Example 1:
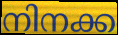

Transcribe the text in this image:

നിനക്ക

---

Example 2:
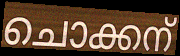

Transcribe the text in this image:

ചൊക്കന്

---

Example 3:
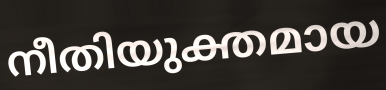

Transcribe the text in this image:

നീതിയുക്തമായ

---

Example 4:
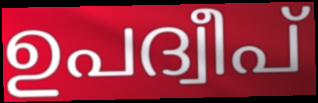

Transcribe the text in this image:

ഉപദ്വീപ്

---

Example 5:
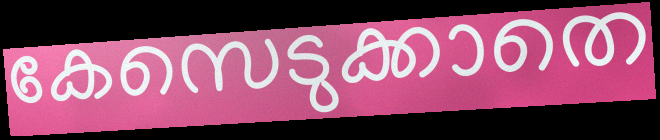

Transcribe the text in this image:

കേസെടുക്കാതെ